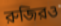
রুজিরও